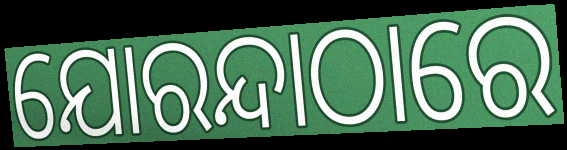
ଯୋରନ୍ଦାଠାରେ